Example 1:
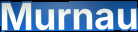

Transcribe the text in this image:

Murnau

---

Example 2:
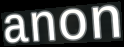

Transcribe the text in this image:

anon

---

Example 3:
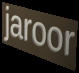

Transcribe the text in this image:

jaroor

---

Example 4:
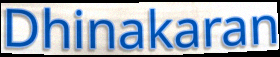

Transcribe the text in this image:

Dhinakaran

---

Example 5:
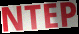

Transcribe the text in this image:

NTEP